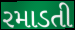
રમાડતી